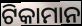
ଟିକାମାନ